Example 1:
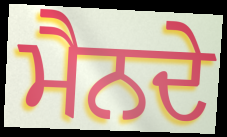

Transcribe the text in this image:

ਮੈਨਦੇ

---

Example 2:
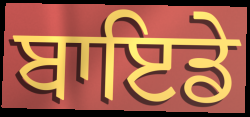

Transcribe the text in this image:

ਬਾਇਡੇ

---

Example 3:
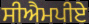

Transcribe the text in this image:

ਸੀਐਮਪੀਏ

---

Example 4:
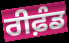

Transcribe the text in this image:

ਰੀਫ਼ੰਡ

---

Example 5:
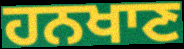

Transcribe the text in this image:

ਹਨਖਾਣ